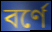
বর্ণে